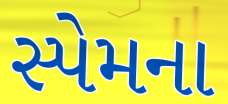
સ્પેમના